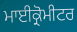
ਮਾਈਕ੍ਰੋਮੀਟਰ